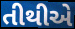
તીથીએ